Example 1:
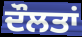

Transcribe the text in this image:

ਦੌਲਤਾਂ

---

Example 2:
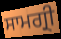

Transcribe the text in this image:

ਸਾਮਗ੍ਰੀ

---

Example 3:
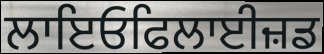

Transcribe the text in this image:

ਲਾਇਓਫਿਲਾਈਜ਼ਡ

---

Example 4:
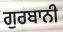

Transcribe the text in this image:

ਗੁਰਬਾਨੀ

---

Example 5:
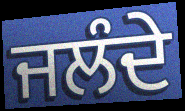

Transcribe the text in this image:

ਜਲੰਦੇ